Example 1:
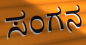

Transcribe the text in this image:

ಸಂಗನ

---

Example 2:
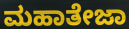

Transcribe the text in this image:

ಮಹಾತೇಜಾ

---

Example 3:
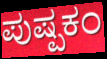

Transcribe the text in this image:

ಪುಷ್ಪಕಂ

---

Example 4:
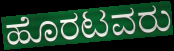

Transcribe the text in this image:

ಹೊರಟವರು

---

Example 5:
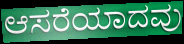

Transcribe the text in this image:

ಆಸರೆಯಾದವು